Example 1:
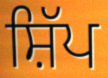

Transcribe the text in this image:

ਸ਼ਿੱਪ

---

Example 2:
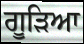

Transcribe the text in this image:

ਗੂੜਿਆ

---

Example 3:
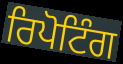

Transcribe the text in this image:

ਰਿਪੋਟਿੰਗ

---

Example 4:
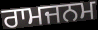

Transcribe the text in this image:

ਰਾਮਜਨਮ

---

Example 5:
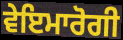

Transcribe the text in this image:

ਵੇਇਮਾਰੋਗੀ